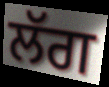
ਲੱਗ